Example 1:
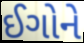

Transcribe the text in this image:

ઈગોને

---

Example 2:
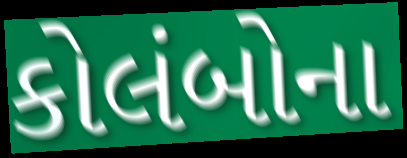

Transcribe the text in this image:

કોલંબોના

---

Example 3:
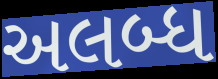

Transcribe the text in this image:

અલબ્ધ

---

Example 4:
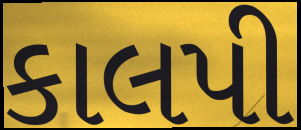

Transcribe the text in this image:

કાલપી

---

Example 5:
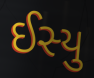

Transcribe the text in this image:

ઈસ્યુ